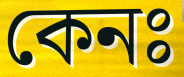
কেনঃ